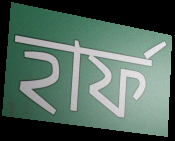
হার্ফ